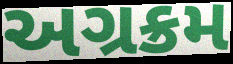
અગ્રક્રમ